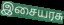
இசையரசு